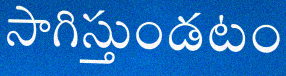
సాగిస్తుండటం